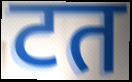
टत